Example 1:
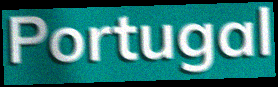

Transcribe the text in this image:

Portugal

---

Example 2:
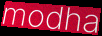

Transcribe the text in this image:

modha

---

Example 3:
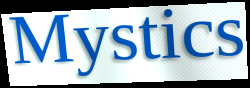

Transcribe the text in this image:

Mystics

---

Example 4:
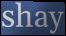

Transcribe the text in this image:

shay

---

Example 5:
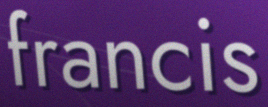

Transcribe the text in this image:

francis